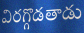
విరగ్గొడతాడు